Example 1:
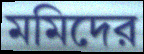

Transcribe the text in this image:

মমিদের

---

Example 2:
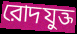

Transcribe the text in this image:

রোদযুক্ত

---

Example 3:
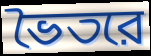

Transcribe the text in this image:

ভৈতরে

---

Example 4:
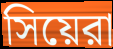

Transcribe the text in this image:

সিয়েরা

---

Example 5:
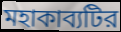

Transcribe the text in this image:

মহাকাব্যটির